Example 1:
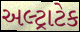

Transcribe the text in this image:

અલ્ટ્રાટેક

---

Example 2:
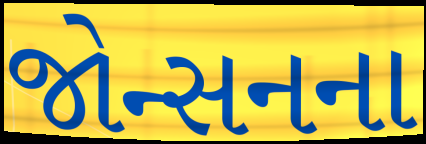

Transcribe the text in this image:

જોન્સનના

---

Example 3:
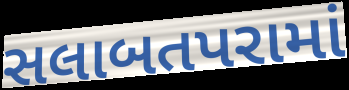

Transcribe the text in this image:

સલાબતપરામાં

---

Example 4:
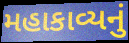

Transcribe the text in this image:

મહાકાવ્યનું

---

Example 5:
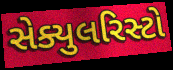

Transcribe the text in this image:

સેક્યુલરિસ્ટો